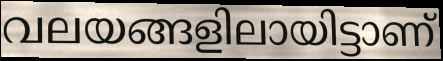
വലയങ്ങളിലായിട്ടാണ്